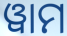
ୱାମ